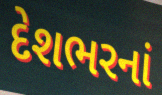
દેશભરનાં